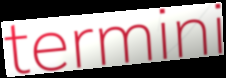
termini